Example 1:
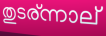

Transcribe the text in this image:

തുടര്ന്നാല്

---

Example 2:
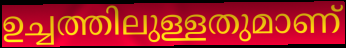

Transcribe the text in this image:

ഉച്ചത്തിലുള്ളതുമാണ്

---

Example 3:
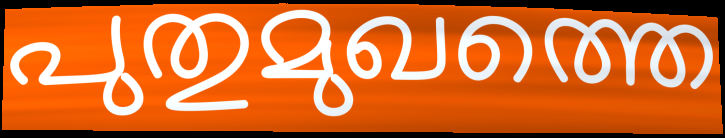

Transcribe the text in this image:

പുതുമുഖത്തെ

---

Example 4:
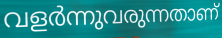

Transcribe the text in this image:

വളർന്നുവരുന്നതാണ്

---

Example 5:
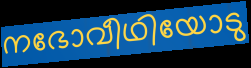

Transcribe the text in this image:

നഭോവീഥിയോടു